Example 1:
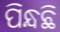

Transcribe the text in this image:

ପିନ୍ଧଛି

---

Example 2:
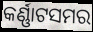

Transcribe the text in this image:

କର୍ଣ୍ଣାଟସମର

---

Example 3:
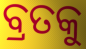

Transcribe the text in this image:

ବ୍ରତକୁ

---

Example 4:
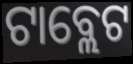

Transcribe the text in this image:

ଟାବ୍ଲେଟ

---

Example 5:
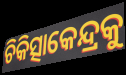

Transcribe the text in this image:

ଚିକିତ୍ସାକେନ୍ଦ୍ରକୁ